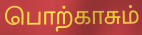
பொற்காசும்